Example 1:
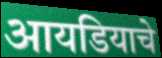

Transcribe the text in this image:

आयडियाचे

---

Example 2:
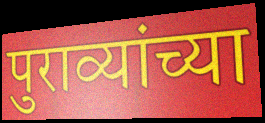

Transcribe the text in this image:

पुराव्यांच्या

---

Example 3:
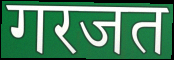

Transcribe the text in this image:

गरजत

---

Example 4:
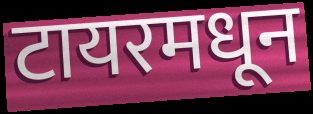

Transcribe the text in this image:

टायरमधून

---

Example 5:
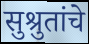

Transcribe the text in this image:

सुश्रुतांचे